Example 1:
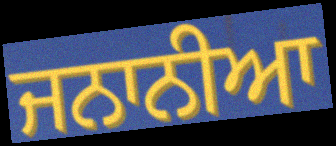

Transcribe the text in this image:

ਜਨਾਨੀਆ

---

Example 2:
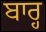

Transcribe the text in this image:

ਬਾਰ੍ਹ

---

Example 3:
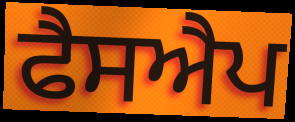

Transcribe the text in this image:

ਫੈਸਐਪ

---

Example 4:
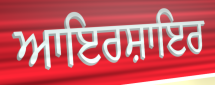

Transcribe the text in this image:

ਆਇਰਸ਼ਾਇਰ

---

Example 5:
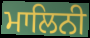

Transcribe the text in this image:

ਮਾਲਿਨੀ